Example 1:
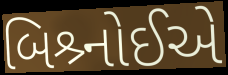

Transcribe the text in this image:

બિશ્ર્નોઈએ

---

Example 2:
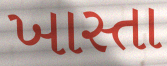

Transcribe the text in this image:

ખાસ્તા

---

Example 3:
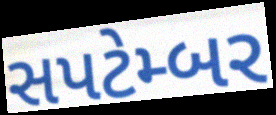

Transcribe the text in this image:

સપટેમ્બર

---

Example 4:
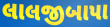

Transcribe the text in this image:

લાલજીબાપા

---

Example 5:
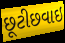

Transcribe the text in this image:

છૂટીછવાઇ